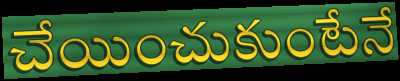
చేయించుకుంటేనే